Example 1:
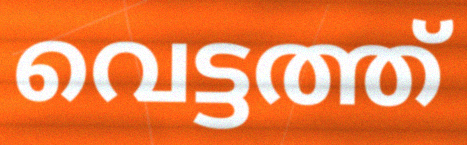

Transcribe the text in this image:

വെട്ടത്ത്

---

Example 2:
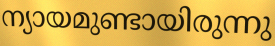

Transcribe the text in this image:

ന്യായമുണ്ടായിരുന്നു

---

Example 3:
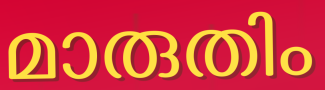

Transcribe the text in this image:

മാരുതിം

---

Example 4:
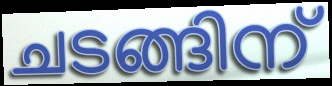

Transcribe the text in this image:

ചടങ്ങിന്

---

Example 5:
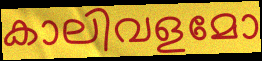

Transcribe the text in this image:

കാലിവളമോ